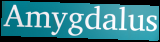
Amygdalus